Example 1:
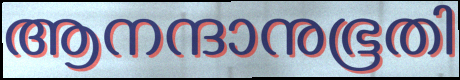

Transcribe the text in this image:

ആനന്ദാനുഭൂതി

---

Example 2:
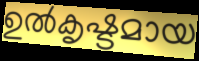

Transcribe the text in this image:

ഉൽകൃഷ്ടമായ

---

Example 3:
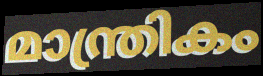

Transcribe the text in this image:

മാന്ത്രികം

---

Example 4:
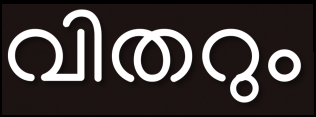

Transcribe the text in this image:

വിതറും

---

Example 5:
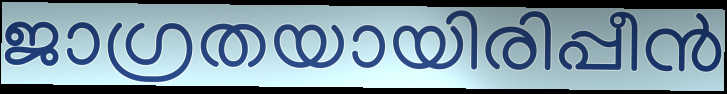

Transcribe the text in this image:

ജാഗ്രതയായിരിപ്പീൻ